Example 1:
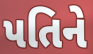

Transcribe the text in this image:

પતિને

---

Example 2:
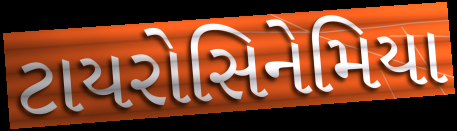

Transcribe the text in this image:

ટાયરોસિનેમિયા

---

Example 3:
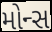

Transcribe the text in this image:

મોન્સ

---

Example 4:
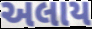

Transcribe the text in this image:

અલાય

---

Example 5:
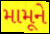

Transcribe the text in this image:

મામૂને